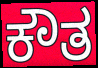
ಕೌತ